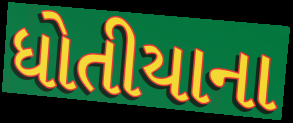
ધોતીયાના